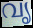
വൃ